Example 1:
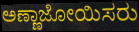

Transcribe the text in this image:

ಅಣ್ಣಾಜೋಯಿಸರು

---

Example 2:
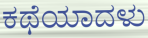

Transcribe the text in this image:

ಕಥೆಯಾದಳು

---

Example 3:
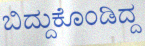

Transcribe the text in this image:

ಬಿದ್ದುಕೊಂಡಿದ್ದ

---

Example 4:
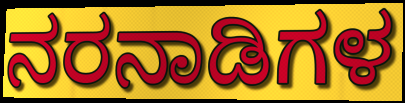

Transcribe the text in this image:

ನರನಾಡಿಗಳ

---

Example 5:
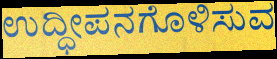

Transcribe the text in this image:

ಉದ್ಧೀಪನಗೊಳಿಸುವ